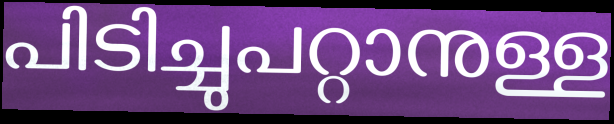
പിടിച്ചുപറ്റാനുള്ള